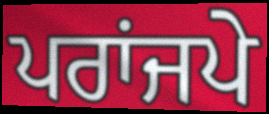
ਪਰਾਂਜਪੇ